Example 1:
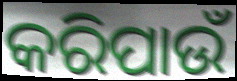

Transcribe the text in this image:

କରିପାଉଁ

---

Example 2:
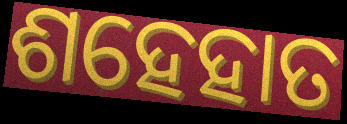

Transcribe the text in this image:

ଶହେହାତ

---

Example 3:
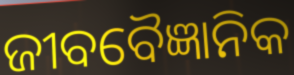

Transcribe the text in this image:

ଜୀବବୈଜ୍ଞାନିକ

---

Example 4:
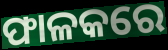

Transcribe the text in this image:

ଫାଳକରେ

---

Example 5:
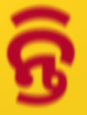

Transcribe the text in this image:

ନ୍ତି